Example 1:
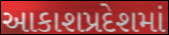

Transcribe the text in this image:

આકાશપ્રદેશમાં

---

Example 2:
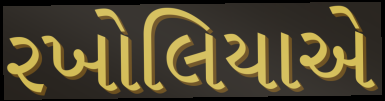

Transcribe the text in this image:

રખોલિયાએ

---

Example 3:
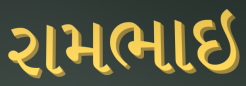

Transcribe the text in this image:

રામભાઇ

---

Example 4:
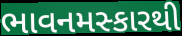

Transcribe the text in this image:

ભાવનમસ્કારથી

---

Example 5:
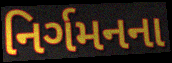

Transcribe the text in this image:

નિર્ગમનના